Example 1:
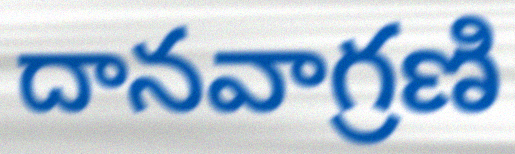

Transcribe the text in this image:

దానవాగ్రణి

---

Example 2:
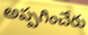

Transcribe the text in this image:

అప్పగించేరు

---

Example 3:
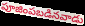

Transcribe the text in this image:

పూజింపబడినవాడు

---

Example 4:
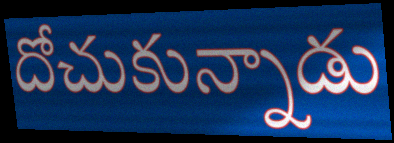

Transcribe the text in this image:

దోచుకున్నాడు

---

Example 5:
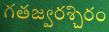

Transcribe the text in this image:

గతజ్వరశ్చిరం